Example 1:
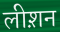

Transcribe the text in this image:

लीश़न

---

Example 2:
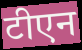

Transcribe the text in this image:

टीएन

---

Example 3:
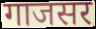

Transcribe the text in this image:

गाजसर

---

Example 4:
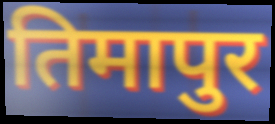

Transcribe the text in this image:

तिमापुर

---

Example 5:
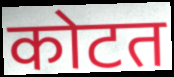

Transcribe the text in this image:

कोटत